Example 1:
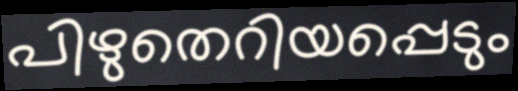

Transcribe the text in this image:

പിഴുതെറിയപ്പെടും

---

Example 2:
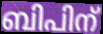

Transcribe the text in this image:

ബിപിന്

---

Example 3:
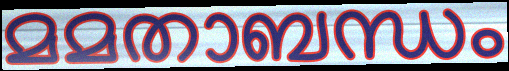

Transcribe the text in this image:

മമതാബന്ധം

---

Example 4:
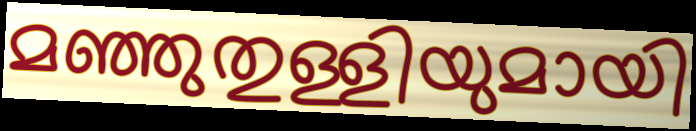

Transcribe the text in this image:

മഞ്ഞുതുള്ളിയുമായി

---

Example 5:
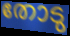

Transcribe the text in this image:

തോടു